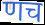
णच